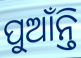
ପୁଆଁନ୍ତି